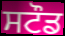
ਸਟੌਡ